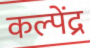
कल्पेंद्र